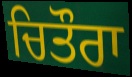
ਚਿਤੌਰਾ